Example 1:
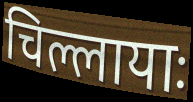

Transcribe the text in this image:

चिल्लायाः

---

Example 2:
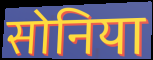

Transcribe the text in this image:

सोनिया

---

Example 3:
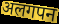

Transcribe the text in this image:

अलगपन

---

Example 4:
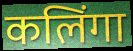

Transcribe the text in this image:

कलिंगा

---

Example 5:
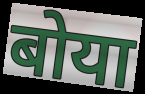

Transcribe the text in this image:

बोया